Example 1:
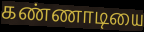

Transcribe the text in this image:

கண்ணாடியை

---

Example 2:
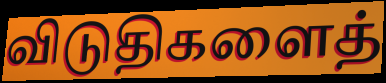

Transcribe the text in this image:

விடுதிகளைத்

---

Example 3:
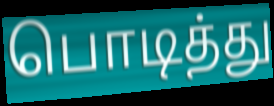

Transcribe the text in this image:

பொடித்து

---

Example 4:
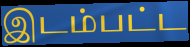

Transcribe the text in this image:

இடம்பட்ட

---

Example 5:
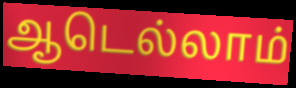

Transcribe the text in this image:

ஆடெல்லாம்